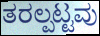
ತರಲ್ಪಟ್ಟವು